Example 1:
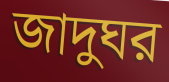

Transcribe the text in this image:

জাদুঘর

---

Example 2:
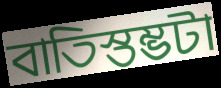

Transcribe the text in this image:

বাতিস্তম্ভটা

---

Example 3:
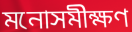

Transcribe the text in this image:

মনোসমীক্ষণ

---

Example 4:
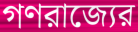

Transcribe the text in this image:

গণরাজ্যের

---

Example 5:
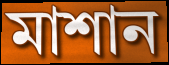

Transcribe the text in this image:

মাশান